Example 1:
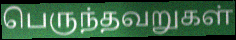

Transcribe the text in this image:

பெருந்தவறுகள்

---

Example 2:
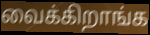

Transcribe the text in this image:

வைக்கிறாங்க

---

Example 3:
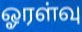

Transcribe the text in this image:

ஓரள்வு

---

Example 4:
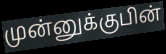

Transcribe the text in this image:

முன்னுக்குபின்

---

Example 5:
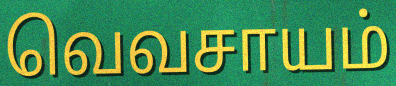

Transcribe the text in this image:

வெவசாயம்